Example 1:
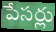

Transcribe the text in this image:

పేసర్లు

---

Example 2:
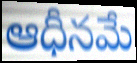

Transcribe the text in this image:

ఆధీనమే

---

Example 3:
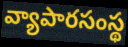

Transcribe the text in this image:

వ్యాపారసంస్థ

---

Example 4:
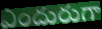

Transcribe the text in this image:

ఎందురుగా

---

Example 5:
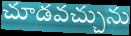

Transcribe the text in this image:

చూడవచ్చును